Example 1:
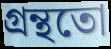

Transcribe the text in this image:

গ্ৰন্থতো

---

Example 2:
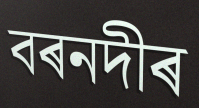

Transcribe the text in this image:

বৰনদীৰ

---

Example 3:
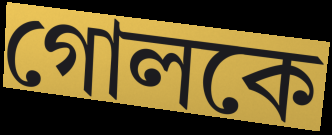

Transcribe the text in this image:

গোলকে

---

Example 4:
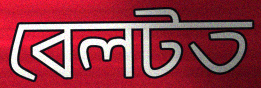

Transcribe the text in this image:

বেলটত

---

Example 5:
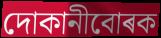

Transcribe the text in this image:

দোকানীবোৰক